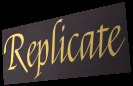
Replicate